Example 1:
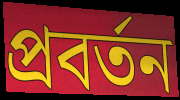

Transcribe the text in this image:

প্ৰবৰ্তন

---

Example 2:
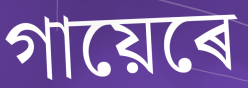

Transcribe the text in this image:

গায়েৰে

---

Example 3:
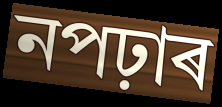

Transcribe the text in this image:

নপঢ়াৰ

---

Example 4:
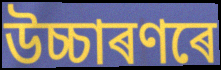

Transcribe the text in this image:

উচ্চাৰণৰে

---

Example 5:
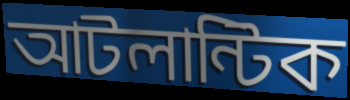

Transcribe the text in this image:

আটলান্টিক